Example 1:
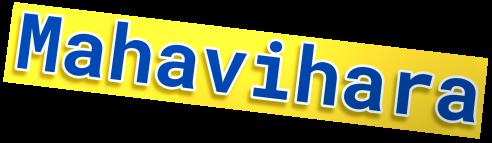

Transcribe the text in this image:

Mahavihara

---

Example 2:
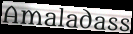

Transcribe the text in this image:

Amaladass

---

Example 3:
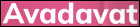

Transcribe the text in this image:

Avadavat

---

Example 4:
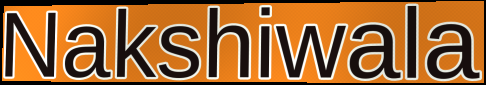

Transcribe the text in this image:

Nakshiwala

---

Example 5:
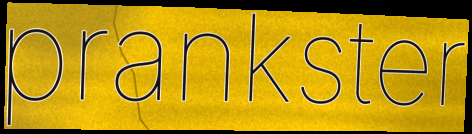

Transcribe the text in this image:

prankster